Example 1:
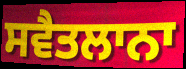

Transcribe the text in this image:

ਸਵੈਤਲਾਨਾ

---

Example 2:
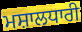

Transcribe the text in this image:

ਮਸ਼ਾਲਧਾਰੀ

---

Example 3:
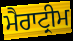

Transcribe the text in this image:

ਮੈਰਾਟ੍ਰੀਮ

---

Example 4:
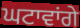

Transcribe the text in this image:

ਘਟਾਵਾਂਗੇ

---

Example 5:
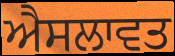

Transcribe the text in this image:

ਐਸਲਾਵਤ